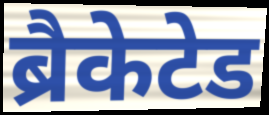
ब्रैकेटेड